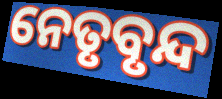
ନେତୃବୃନ୍ଦ